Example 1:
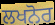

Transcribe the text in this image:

ਲਖਨੋਰ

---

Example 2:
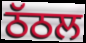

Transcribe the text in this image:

ਠੱਠਲ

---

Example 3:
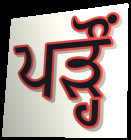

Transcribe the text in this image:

ਪੜ੍ਹੌਂ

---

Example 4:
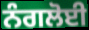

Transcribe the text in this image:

ਨੰਗਲੋਈ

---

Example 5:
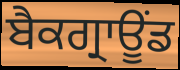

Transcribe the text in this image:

ਬੈਕਗ੍ਰਾਊਂਡ